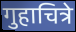
गुहाचित्रे